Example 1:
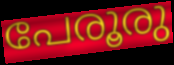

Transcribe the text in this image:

പേരൂരു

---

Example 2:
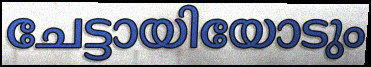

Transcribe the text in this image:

ചേട്ടായിയോടും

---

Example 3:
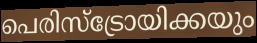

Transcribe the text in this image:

പെരിസ്ട്രോയിക്കയും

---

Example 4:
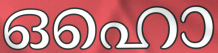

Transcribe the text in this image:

ഒഹൊ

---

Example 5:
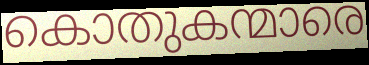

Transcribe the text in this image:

കൊതുകന്മാരെ